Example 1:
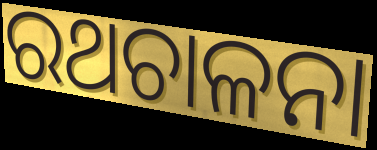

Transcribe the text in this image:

ରଥଚାଳନା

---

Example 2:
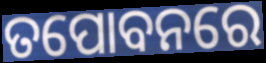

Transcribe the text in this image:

ତପୋବନରେ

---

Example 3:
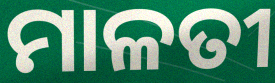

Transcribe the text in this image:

ମାଳତୀ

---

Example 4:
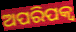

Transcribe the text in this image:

ଅପରିପକ୍ୱ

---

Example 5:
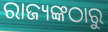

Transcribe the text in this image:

ରାଜ୍ୟଙ୍କଠାରୁ